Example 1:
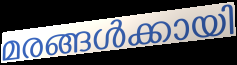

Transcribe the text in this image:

മരങ്ങൾക്കായി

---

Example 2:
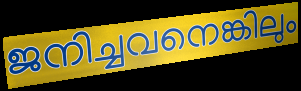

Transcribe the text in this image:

ജനിച്ചവനെങ്കിലും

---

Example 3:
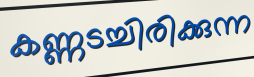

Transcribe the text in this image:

കണ്ണടച്ചിരിക്കുന്ന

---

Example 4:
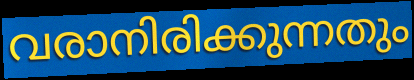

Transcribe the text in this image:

വരാനിരിക്കുന്നതും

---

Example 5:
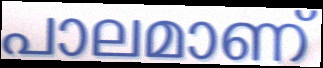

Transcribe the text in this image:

പാലമാണ്